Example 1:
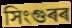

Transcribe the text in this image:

সিংগুৰৰ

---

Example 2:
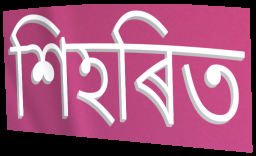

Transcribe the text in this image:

শিহৰিত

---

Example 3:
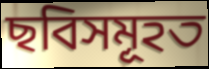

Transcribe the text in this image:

ছবিসমূহত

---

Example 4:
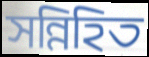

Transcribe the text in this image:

সন্নিহিত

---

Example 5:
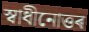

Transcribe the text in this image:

স্বাধীনোত্তৰ